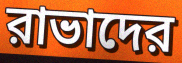
রাভাদের